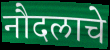
नौदलाचे